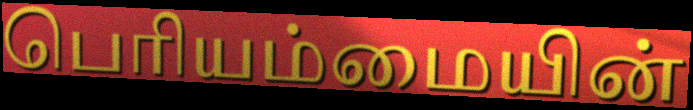
பெரியம்மையின்